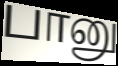
பானு